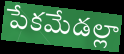
పేకమేడల్లా